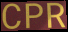
CPR